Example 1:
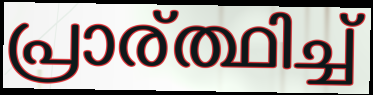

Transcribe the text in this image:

പ്രാര്ത്ഥിച്ച്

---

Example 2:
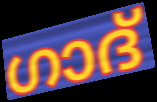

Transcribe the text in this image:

ഗാദ്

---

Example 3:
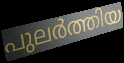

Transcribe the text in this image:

പുലർത്തിയ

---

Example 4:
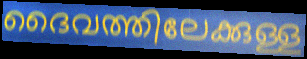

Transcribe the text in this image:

ദൈവത്തിലേക്കുള്ള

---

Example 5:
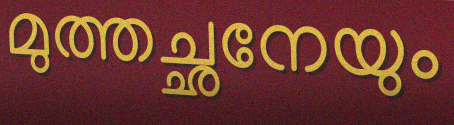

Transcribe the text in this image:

മുത്തച്ഛനേയും